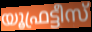
യൂഫ്രട്ടീസ്